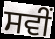
ਸਵੀਂ